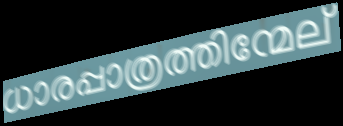
ധാരപ്പാത്രത്തിന്മേല്